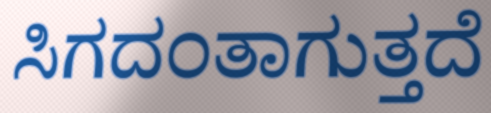
ಸಿಗದಂತಾಗುತ್ತದೆ